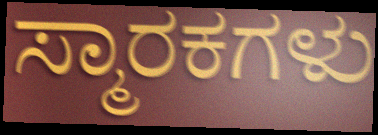
ಸ್ಮಾರಕಗಳು